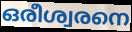
ഒരീശ്വരനെ